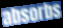
absorbs